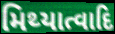
મિથ્યાત્વાદિ